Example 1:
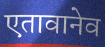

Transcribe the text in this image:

एतावानेव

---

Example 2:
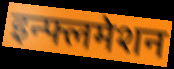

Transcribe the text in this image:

इन्फ्लमेशन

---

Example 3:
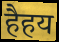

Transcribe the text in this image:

हैहय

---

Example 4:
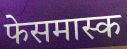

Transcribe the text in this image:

फेसमास्क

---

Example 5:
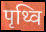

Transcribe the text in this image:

पृथ्वि